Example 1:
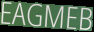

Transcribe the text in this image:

EAGMEB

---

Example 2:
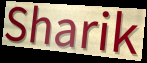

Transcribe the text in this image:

Sharik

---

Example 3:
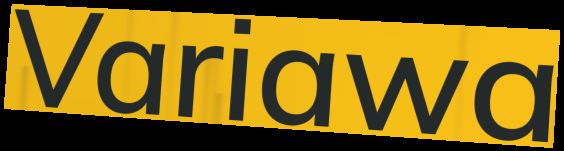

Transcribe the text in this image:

Variawa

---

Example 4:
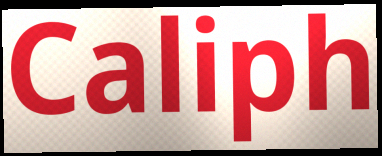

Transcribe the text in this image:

Caliph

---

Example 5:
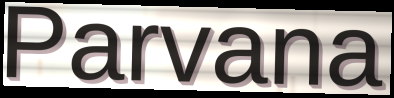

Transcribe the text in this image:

Parvana